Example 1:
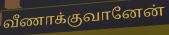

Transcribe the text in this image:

வீணாக்குவானேன்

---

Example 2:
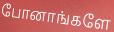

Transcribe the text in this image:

போனாங்களே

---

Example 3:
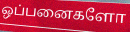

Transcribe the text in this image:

ஒப்பனைகளோ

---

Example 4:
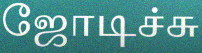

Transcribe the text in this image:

ஜோடிச்சு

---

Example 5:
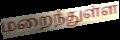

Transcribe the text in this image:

மறைந்துள்ள